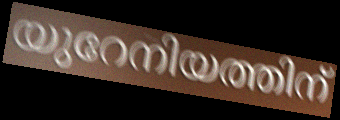
യുറേനിയത്തിന്